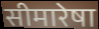
सीमारेषा